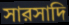
সারসাদি